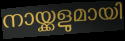
നായ്ക്കളുമായി